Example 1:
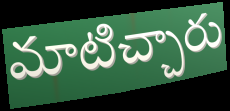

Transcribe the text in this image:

మాటిచ్చారు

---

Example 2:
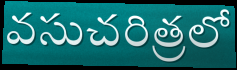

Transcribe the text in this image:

వసుచరిత్రలో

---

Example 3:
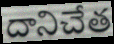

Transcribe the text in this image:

దానిచేత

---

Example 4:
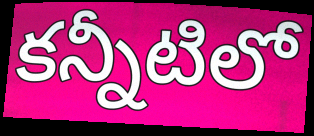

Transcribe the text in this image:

కన్నీటిలో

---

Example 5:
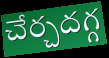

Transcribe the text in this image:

చేర్చదగ్గ